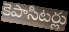
కెపాసిటర్లు